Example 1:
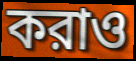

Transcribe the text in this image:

করাও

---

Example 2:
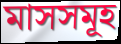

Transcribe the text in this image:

মাসসমূহ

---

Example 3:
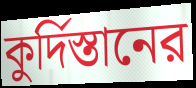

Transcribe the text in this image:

কুর্দিস্তানের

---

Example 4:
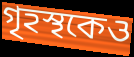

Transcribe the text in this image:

গৃহস্থকেও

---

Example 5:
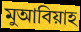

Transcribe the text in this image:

মুআবিয়াহ